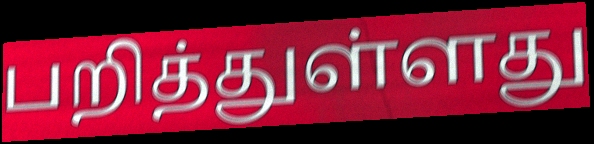
பறித்துள்ளது